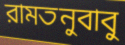
রামতনুবাবু